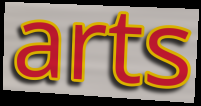
arts